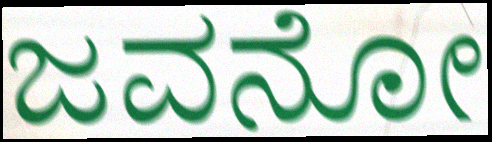
ಜವನೋ